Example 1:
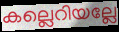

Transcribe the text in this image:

കല്ലെറിയല്ലേ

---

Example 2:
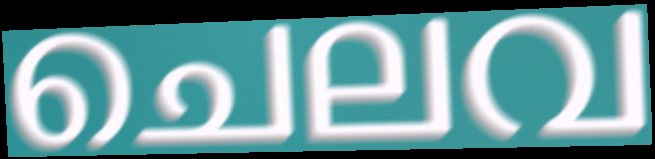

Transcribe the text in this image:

ചെലവ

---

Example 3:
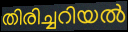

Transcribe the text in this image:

തിരിച്ചറിയൽ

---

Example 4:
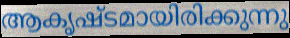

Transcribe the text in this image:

ആകൃഷ്ടമായിരിക്കുന്നു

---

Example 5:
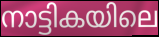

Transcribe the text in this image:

നാട്ടികയിലെ